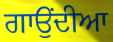
ਗਾਉਂਦੀਆ